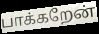
பாக்கறேன்